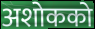
अशोकको